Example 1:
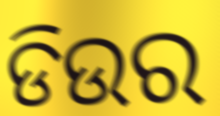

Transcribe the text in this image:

ଡିଉର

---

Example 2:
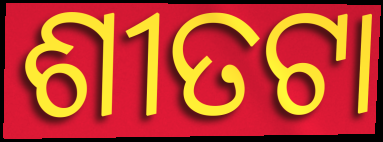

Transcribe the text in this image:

ଶୀତଟା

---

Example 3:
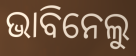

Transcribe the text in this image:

ଭାବିନେଲୁ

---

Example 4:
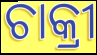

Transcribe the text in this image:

ଚାକ୍ରୀ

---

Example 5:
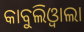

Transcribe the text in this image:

କାବୁଲିଓ୍ୱାଲା